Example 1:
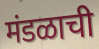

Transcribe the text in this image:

मंडळाची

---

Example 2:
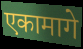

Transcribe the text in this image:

एकामागे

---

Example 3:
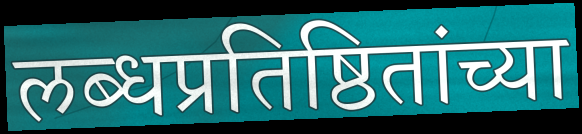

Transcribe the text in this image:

लब्धप्रतिष्ठितांच्या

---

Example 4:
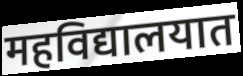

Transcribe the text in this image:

महविद्यालयात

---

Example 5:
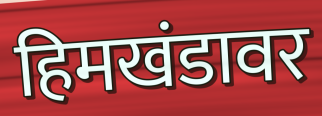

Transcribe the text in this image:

हिमखंडावर